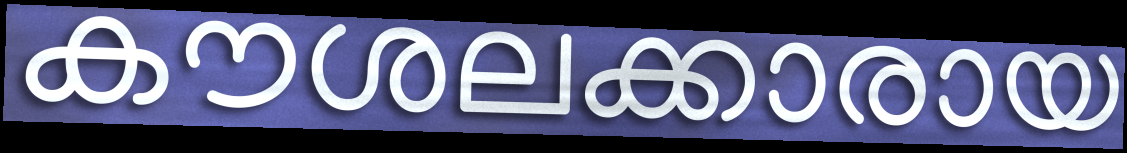
കൗശലക്കാരായ